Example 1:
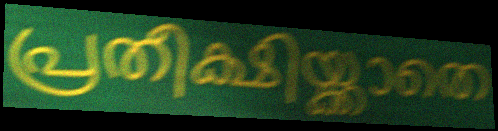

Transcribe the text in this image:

പ്രതീക്ഷിയ്ക്കാതെ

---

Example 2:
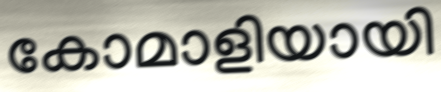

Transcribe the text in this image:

കോമാളിയായി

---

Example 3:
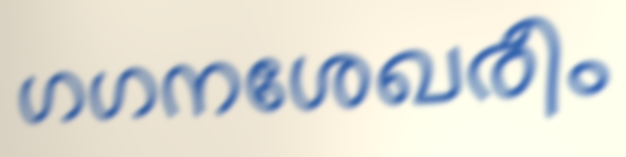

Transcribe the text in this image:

ഗഗനശേഖരീം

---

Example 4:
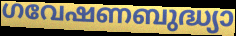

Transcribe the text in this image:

ഗവേഷണബുദ്ധ്യാ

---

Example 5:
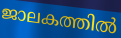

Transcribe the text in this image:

ജാലകത്തിൽ